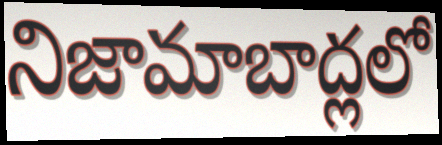
నిజామాబాద్లలో